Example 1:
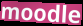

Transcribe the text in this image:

moodle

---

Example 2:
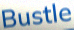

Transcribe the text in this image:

Bustle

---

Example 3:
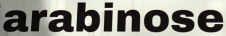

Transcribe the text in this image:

arabinose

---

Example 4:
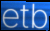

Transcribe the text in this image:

etb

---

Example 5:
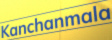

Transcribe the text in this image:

Kanchanmala